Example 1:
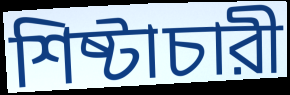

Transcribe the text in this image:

শিষ্টাচারী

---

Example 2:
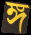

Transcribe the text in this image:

ঙ্গ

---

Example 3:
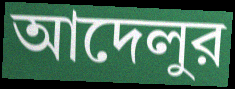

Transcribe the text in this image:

আদেলুর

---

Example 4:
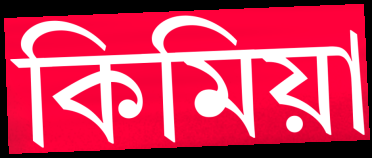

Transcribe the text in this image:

কিমিয়া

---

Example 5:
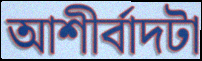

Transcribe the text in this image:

আশীর্বাদটা